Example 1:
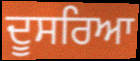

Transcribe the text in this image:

ਦੂਸਰਿਆ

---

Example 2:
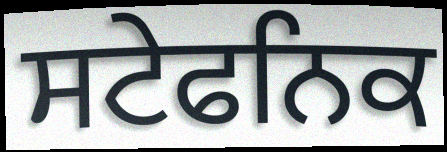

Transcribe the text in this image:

ਸਟੇਫਨਿਕ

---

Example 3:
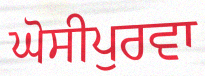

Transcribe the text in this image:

ਘੋਸੀਪੁਰਵਾ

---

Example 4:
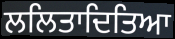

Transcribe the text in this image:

ਲਲਿਤਾਦਿਤਿਆ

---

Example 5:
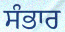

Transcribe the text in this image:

ਸੰਭਾਰ